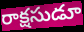
రాక్షసుడూ